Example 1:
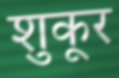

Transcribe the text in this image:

शुकूर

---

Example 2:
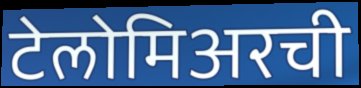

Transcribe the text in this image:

टेलोमिअरची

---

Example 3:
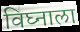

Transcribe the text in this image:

विघ्नाला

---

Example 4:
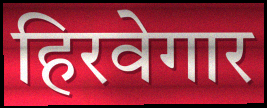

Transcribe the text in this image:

हिरवेगार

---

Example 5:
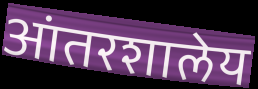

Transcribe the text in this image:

आंतरशालेय